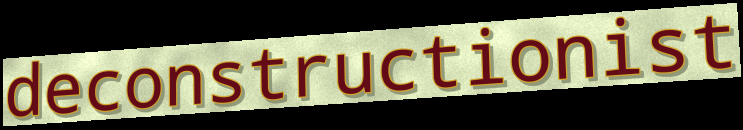
deconstructionist